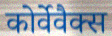
कोर्वेवैक्स